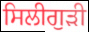
ਸਿਲੀਗੁੜੀ